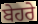
ਬੇਹਰੇ